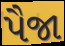
પૈજા